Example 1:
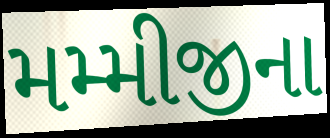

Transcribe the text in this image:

મમ્મીજીના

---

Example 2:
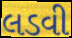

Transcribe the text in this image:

લડવી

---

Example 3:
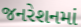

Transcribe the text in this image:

જનરેશનમાં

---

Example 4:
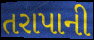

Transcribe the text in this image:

તરાપાની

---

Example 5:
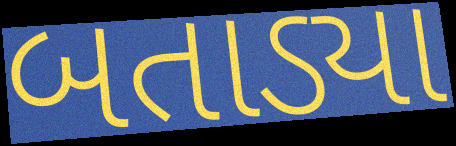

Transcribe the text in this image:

બતાડ્યા